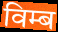
विम्ब